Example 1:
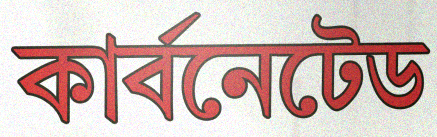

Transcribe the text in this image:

কার্বনেটেড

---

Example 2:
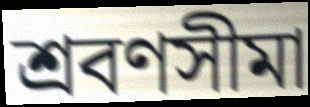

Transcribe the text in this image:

শ্রবণসীমা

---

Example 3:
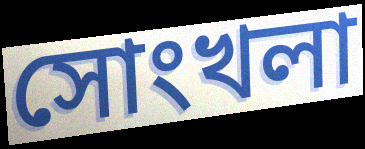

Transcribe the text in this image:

সোংখলা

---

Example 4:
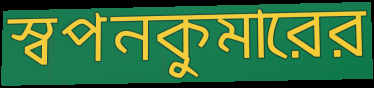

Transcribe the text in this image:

স্বপনকুমারের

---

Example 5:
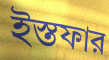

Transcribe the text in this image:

ইস্তফার